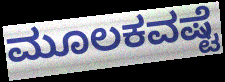
ಮೂಲಕವಷ್ಟೆ